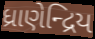
ધ્રાણેન્દ્રિય